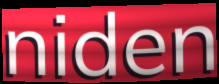
niden